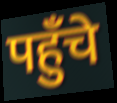
पहुँचे